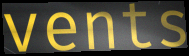
vents